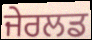
ਜੇਰਲਡ